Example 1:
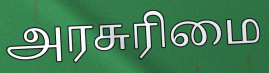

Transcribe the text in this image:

அரசுரிமை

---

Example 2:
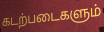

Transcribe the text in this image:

கடற்படைகளும்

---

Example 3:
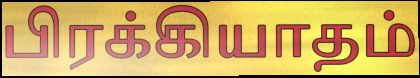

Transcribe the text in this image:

பிரக்கியாதம்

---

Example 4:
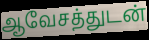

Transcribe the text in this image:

ஆவேசத்துடன்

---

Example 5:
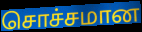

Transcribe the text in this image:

சொச்சமான